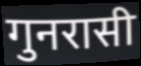
गुनरासी